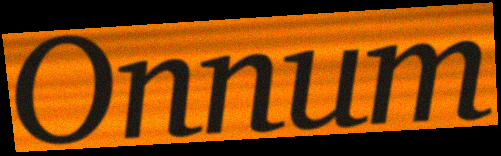
Onnum